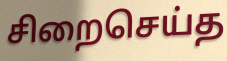
சிறைசெய்த